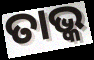
ତାଭ୍କ